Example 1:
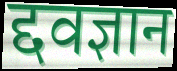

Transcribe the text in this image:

द्दवज्ञान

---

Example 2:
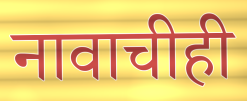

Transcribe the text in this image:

नावाचीही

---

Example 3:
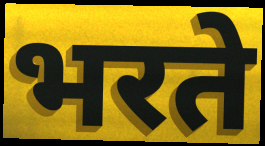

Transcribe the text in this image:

भरते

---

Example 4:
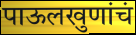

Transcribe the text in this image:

पाऊलखुणांचं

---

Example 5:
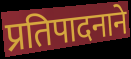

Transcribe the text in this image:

प्रतिपादनाने